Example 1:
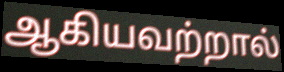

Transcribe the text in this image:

ஆகியவற்றால்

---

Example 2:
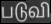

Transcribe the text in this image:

படுவி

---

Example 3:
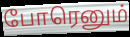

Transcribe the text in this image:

போரெனும்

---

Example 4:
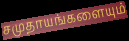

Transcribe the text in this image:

சமுதாயங்களையும்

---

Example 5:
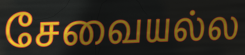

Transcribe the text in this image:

சேவையல்ல